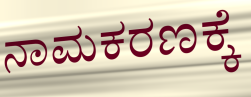
ನಾಮಕರಣಕ್ಕೆ